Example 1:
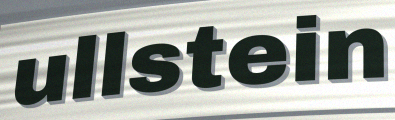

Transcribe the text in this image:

ullstein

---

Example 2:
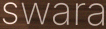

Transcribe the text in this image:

swara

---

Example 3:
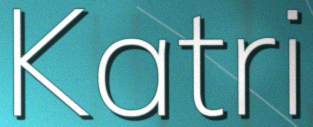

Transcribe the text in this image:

Katri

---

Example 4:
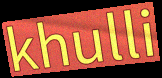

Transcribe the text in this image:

khulli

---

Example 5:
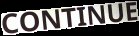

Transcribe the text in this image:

CONTINUE